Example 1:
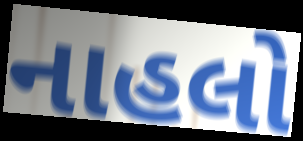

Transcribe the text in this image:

નાહલો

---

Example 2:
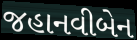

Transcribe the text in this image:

જહાનવીબેન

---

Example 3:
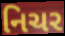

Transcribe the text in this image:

નિચર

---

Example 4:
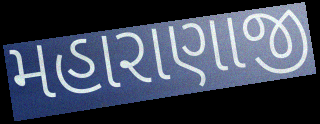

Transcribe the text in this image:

મહારાણાજી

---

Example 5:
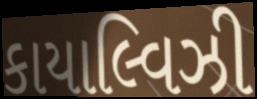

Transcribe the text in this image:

કાયાલ્વિઝી